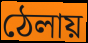
ঠেলায়